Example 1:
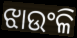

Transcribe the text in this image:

ଝାଉଂଳି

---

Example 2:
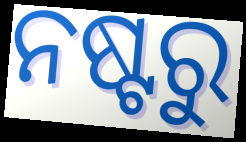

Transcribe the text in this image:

ନଷ୍ଟରୁ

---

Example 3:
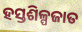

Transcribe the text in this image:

ହସ୍ତଶିଳ୍ପଜାତ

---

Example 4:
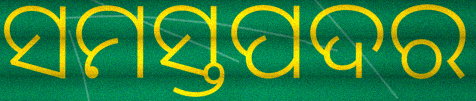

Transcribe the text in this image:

ସମସ୍ତପଦର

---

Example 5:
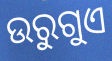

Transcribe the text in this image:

ଉରୁଗୁଏ